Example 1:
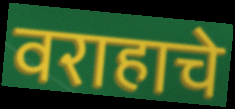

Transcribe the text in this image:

वराहाचे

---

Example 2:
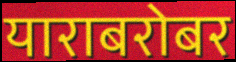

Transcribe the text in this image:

याराबरोबर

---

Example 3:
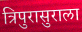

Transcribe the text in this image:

त्रिपुरासुराला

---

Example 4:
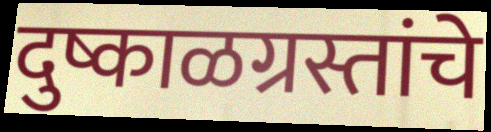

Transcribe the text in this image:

दुष्काळग्रस्तांचे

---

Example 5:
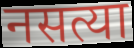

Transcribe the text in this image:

नसत्या